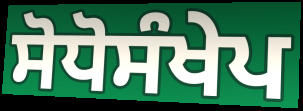
ਸੋਧੋਸੰਖੇਪ